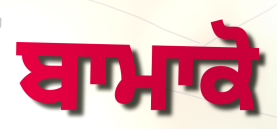
ਬਾਮਾਕੋ